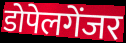
डोपेलगेंजर